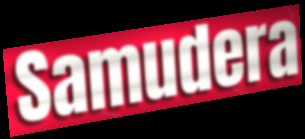
Samudera